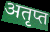
अतृप्त